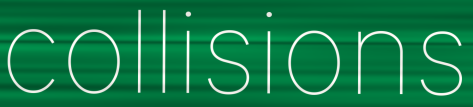
collisions